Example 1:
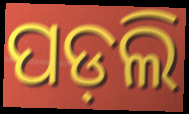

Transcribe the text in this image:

ପଡ଼ଲି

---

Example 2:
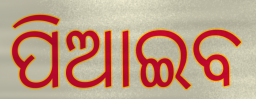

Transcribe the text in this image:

ପିଆଇବ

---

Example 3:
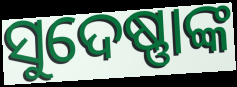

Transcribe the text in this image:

ସୁଦେଷ୍ଣାଙ୍କ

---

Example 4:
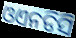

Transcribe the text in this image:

ଓଏନଡିସି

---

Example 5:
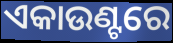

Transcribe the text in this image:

ଏକାଉଣ୍ଟରେ